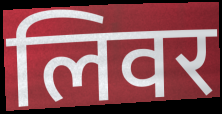
लिवर